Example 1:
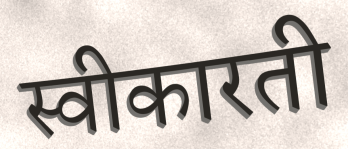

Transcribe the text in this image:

स्वीकारती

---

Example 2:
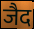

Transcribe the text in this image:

जैद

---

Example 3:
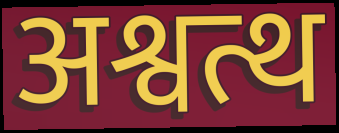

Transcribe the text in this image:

अश्वत्थ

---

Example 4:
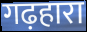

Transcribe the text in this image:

गढ़हारा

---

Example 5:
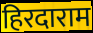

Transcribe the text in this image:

हिरदाराम